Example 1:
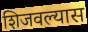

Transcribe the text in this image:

शिजवल्यास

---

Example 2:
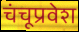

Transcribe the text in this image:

चंचूप्रवेश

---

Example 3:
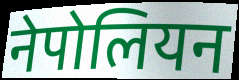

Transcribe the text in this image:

नेपोलियन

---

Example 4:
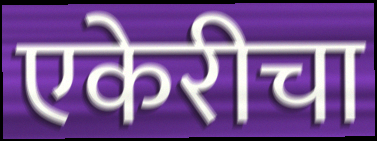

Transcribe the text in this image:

एकेरीचा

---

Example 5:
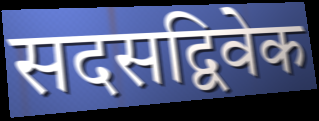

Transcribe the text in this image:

सदसद्विवेक